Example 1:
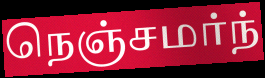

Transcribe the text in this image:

நெஞ்சமர்ந்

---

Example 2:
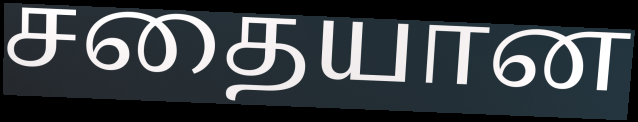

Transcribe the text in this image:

சதையான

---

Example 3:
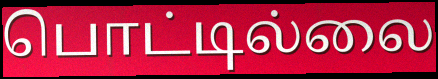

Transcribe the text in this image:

பொட்டில்லை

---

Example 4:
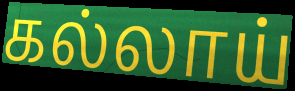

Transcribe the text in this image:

கல்லாய்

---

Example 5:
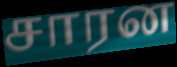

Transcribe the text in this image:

சாரன